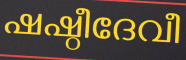
ഷഷ്ഠീദേവീ